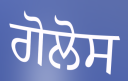
ਗੋਲੋਸ